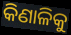
କିଣାଳିକୁ